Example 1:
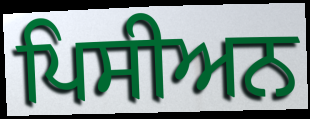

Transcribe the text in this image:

ਪਿਸੀਅਨ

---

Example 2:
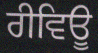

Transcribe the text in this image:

ਰੀਵਿਊ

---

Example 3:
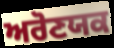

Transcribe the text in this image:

ਅਰੋਣਯਕ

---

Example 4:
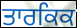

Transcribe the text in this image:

ਤਾਰਕਿਕ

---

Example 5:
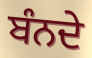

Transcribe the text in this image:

ਬੰਨਦੇ